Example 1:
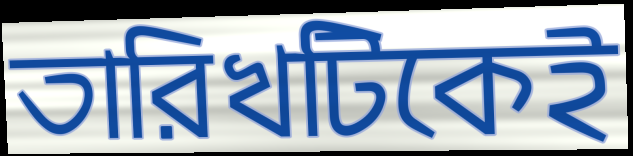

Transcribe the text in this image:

তারিখটিকেই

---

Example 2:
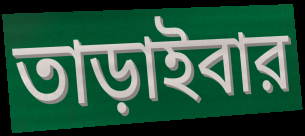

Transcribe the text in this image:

তাড়াইবার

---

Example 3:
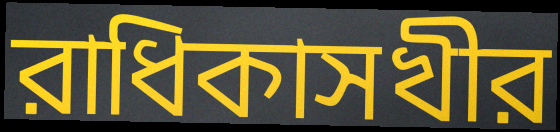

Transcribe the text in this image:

রাধিকাসখীর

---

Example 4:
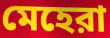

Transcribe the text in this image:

মেহেরা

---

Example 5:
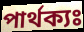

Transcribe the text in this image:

পার্থক্যঃ